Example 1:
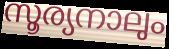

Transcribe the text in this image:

സൂര്യനാലും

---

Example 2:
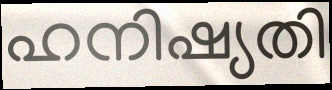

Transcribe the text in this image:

ഹനിഷ്യതി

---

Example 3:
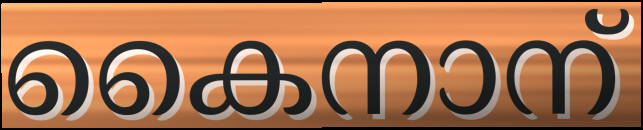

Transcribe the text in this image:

കൈനാന്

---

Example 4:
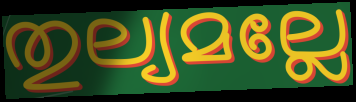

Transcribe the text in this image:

തുല്യമല്ലേ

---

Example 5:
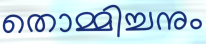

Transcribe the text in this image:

തൊമ്മിച്ചനും